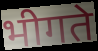
भीगते